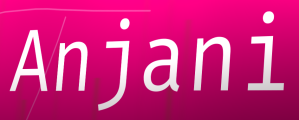
Anjani